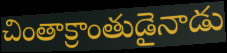
చింతాక్రాంతుడైనాడు